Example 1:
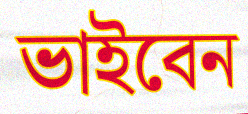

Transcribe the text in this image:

ভাইবেন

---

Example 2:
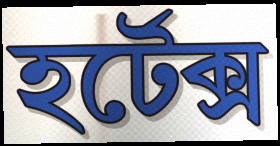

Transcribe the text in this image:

হর্টেক্স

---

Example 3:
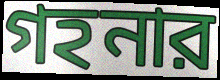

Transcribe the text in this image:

গহনার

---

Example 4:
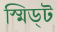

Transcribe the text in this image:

স্মিড্ট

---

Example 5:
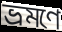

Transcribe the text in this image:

ভ্রমণে